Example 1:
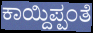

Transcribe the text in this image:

ಕಾಯ್ದಿಪ್ಪಂತೆ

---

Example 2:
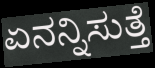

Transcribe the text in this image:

ಏನನ್ನಿಸುತ್ತೆ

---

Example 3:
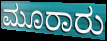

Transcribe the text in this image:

ಮೂರಾರು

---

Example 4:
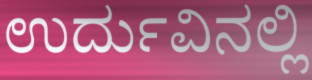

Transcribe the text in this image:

ಉರ್ದುವಿನಲ್ಲಿ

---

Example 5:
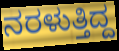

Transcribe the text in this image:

ನರಳುತ್ತಿದ್ದ